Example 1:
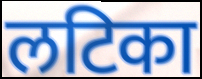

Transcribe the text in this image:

लटिका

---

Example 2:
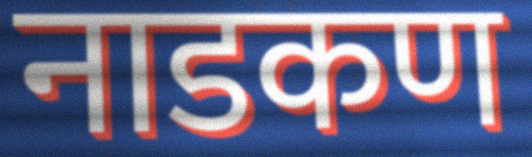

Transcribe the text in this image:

नाडकण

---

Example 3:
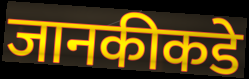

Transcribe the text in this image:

जानकीकडे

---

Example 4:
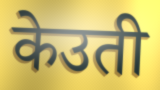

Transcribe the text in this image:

केउती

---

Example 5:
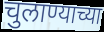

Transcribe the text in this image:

चुलाण्याच्या